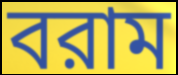
বরাম